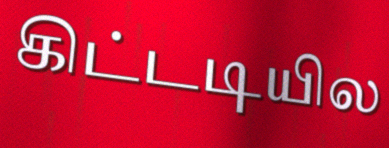
கிட்டடியில